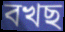
বখছ